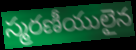
స్మరణీయులైన